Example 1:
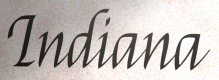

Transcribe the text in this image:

Indiana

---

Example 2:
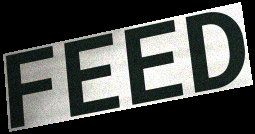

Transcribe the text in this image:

FEED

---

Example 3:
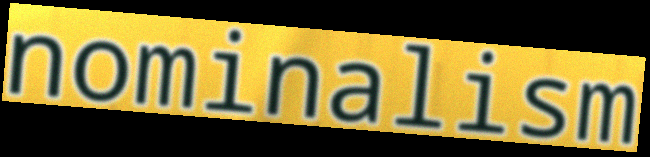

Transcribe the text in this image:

nominalism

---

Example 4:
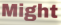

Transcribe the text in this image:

Might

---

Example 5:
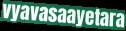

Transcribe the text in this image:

vyavasaayetara